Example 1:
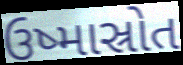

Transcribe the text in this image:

ઉષ્માસ્રોત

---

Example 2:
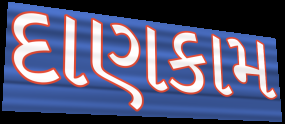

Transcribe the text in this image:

દાણકામ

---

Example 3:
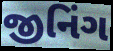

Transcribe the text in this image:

જીનિંગ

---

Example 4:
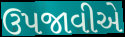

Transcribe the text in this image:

ઉપજાવીએ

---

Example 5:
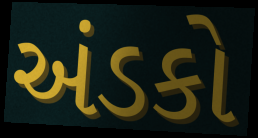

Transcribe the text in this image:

અંડકો